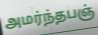
அமர்ந்தபஞ்